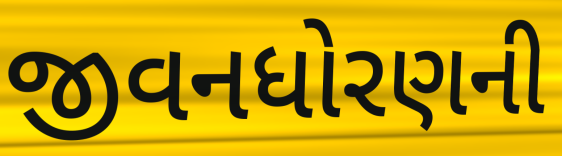
જીવનધોરણની